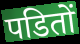
पडितों